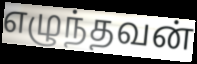
எழுந்தவன்